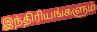
இந்திரியங்களும்